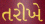
તરીખે